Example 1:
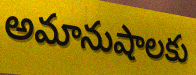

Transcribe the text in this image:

అమానుషాలకు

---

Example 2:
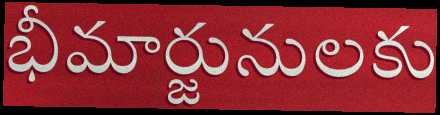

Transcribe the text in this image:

భీమార్జునులకు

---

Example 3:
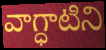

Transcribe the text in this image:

వాగ్ధాటిని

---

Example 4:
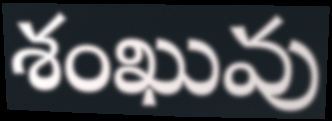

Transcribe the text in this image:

శంఖువు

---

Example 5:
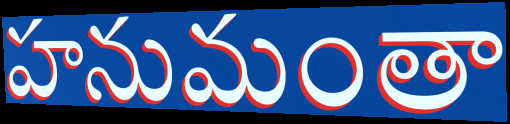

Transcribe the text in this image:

హనుమంతా